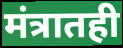
मंत्रातही